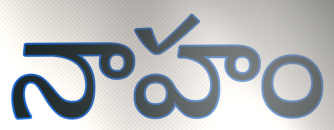
నాహం